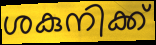
ശകുനിക്ക്